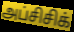
அப்சிசிக்